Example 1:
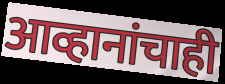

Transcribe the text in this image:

आव्हानांचाही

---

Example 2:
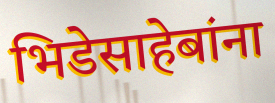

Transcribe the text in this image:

भिडेसाहेबांना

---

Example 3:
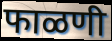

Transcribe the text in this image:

फाळणी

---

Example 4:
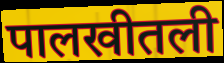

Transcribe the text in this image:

पालखीतली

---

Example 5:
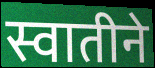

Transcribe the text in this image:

स्वातीने